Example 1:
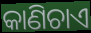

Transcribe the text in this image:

କାଣିଚାଏ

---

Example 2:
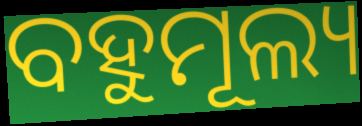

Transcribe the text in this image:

ବହୁମୂଲ୍ୟ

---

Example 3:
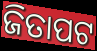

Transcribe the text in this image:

ଜିତାପଟ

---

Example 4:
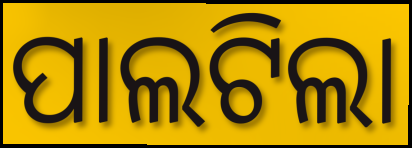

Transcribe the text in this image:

ପାଲଟିଲା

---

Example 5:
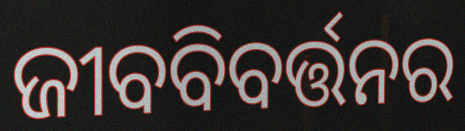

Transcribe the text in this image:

ଜୀବବିବର୍ତ୍ତନର